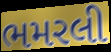
ભમરલી